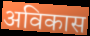
अविकास